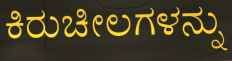
ಕಿರುಚೀಲಗಳನ್ನು